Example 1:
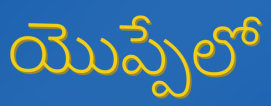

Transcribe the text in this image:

యొప్పేలో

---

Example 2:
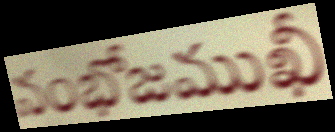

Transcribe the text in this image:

నంభోజముఖీ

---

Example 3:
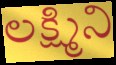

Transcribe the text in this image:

లక్ష్మిని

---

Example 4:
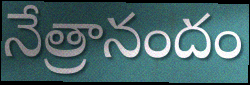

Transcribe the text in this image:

నేత్రానందం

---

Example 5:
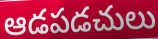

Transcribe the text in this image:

ఆడపడచులు